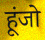
हूंजो